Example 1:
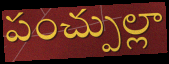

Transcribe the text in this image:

పంచ్పుల్లా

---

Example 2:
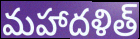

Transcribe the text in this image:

మహాదళిత్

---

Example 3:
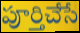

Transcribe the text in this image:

పూర్తిచేసే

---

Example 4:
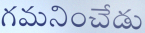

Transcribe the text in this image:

గమనించేడు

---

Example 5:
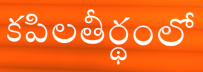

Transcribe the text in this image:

కపిలతీర్థంలో